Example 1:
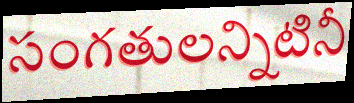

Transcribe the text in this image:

సంగతులన్నిటినీ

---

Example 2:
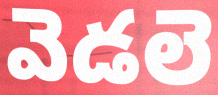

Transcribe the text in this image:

వెడలె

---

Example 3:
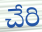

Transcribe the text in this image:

చేరి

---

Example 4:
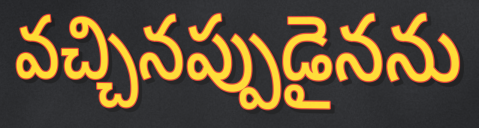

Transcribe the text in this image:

వచ్చినప్పుడైనను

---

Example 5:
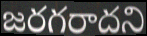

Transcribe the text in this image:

జరగరాదని